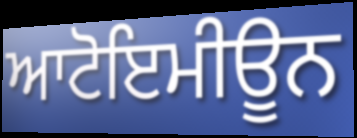
ਆਟੋਇਮੀਊਨ